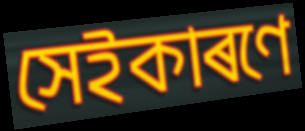
সেইকাৰণে